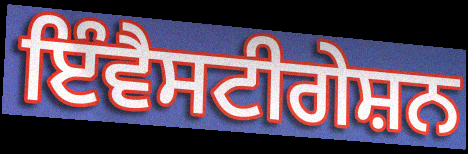
ਇੰਵੈਸਟੀਗੇਸ਼ਨ